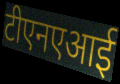
टीएनएआई